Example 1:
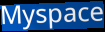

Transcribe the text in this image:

Myspace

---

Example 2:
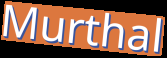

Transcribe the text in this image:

Murthal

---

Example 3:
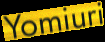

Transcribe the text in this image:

Yomiuri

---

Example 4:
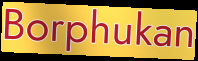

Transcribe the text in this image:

Borphukan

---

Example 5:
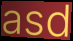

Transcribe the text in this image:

asd